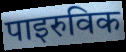
पाइरुविक